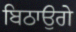
ਬਿਠਾਉਗੇ